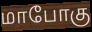
மாபோகு